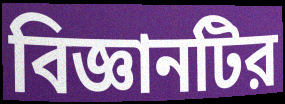
বিজ্ঞানটির